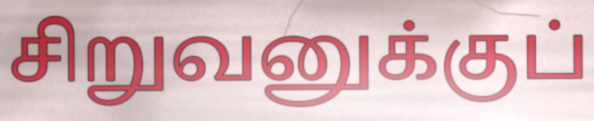
சிறுவனுக்குப்